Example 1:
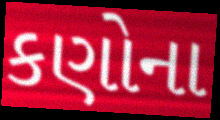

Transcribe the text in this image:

કણોના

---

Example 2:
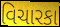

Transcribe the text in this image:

વિચારકા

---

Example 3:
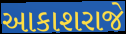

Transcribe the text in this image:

આકાશરાજે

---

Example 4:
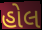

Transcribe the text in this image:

હોલ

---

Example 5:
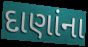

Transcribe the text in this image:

દાણાંના